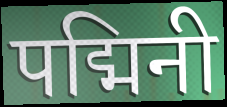
पद्मिनी